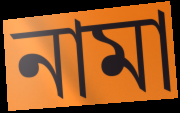
নামা